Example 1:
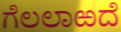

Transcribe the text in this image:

ಗೆಲಲಾಱದೆ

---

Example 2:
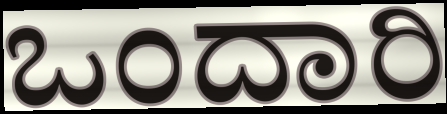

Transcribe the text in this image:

ಒಂದಾರಿ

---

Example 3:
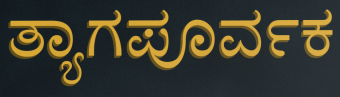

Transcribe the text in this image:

ತ್ಯಾಗಪೂರ್ವಕ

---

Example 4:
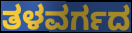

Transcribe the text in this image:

ತಳವರ್ಗದ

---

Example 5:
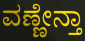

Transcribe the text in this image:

ವಣ್ಣೇನ್ತಾ